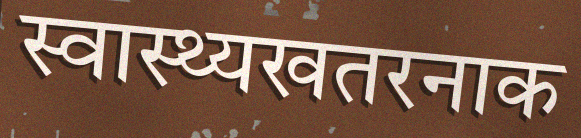
स्वास्थ्यखतरनाक